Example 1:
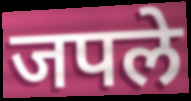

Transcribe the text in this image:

जपले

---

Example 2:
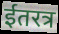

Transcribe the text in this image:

ईतरत्र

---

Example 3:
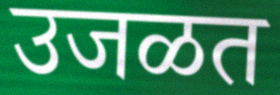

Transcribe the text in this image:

उजळत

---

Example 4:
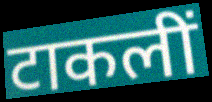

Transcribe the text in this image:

टाकलीं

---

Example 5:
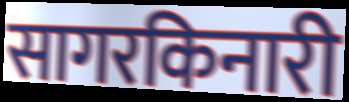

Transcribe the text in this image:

सागरकिनारी